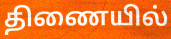
திணையில்